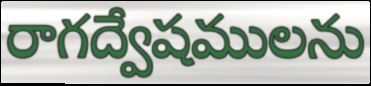
రాగద్వేషములను